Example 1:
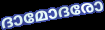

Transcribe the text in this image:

ദാമോദരോ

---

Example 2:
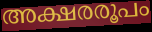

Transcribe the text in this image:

അക്ഷരരൂപം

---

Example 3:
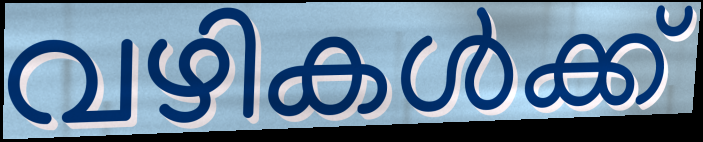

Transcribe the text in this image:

വഴികൾക്ക്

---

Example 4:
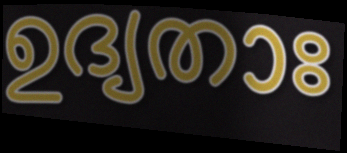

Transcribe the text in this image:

ഉദ്യതാഃ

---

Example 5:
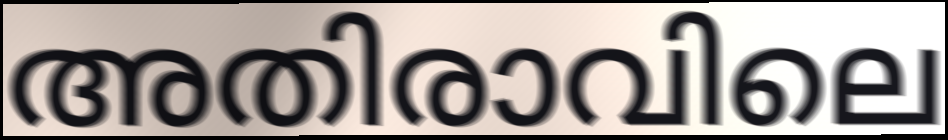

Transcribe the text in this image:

അതിരാവിലെ